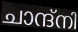
ചാന്ദ്നി